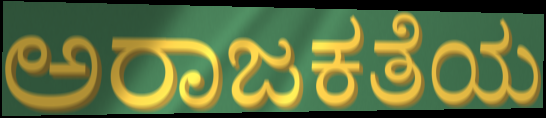
ಅರಾಜಕತೆಯ